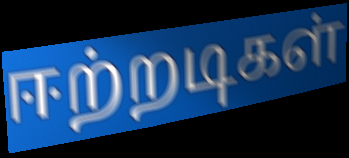
ஈற்றடிகள்